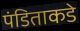
पंडिताकडे